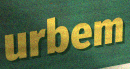
urbem